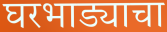
घरभाड्याचा